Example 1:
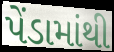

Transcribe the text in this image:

પેંડામાંથી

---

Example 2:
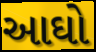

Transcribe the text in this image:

આઘો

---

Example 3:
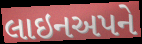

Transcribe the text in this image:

લાઇનઅપને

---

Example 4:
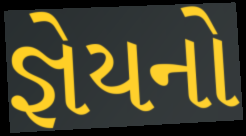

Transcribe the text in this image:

જ્ઞેયનો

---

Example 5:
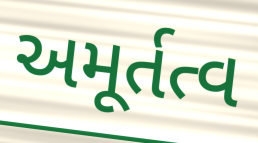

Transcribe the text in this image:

અમૂર્તત્વ